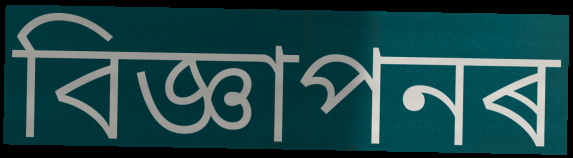
বিজ্ঞাপনৰ